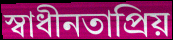
স্বাধীনতাপ্রিয়